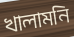
খালামনি